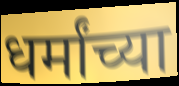
धर्मांच्या